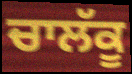
ਚਾਲੱਕੂ